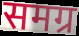
समग्र